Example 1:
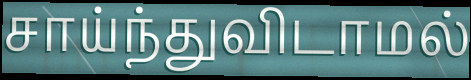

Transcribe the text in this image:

சாய்ந்துவிடாமல்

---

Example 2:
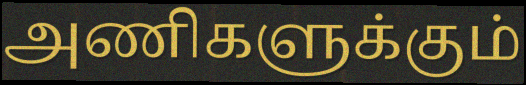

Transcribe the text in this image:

அணிகளுக்கும்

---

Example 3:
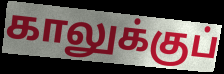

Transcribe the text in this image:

காலுக்குப்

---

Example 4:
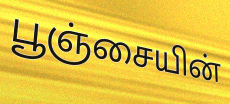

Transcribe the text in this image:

பூஞ்சையின்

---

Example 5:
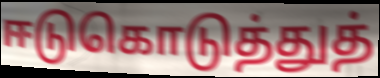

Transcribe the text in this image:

ஈடுகொடுத்துத்